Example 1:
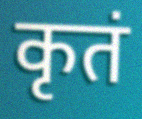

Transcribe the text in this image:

कृतं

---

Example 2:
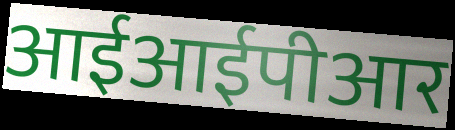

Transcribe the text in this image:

आईआईपीआर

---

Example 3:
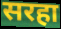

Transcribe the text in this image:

सरहा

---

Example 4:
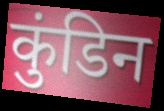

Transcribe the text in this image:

कुंडिन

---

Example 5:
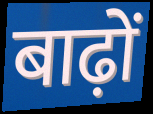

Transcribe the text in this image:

बाढ़ों